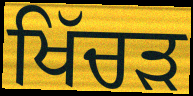
ਖਿੱਚੜ